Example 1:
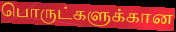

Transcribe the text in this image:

பொருட்களுக்கான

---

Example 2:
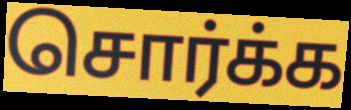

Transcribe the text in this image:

சொர்க்க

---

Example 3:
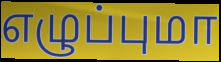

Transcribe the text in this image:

எழுப்புமா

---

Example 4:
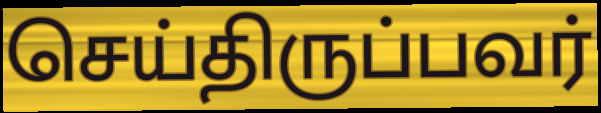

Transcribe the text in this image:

செய்திருப்பவர்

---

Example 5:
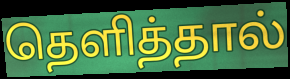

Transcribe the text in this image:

தெளித்தால்